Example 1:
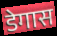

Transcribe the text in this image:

डेगास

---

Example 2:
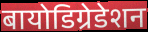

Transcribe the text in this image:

बायोडिग्रेडेशन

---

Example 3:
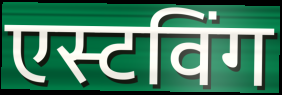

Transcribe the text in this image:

एस्टविंग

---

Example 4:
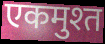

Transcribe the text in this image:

एकमुश्‍त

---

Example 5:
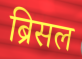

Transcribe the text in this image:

ब्रिसल